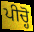
ਪੀਚ੍ਹੋ